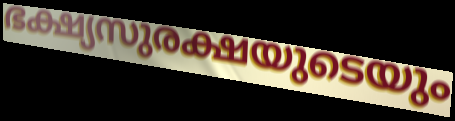
ഭക്ഷ്യസുരക്ഷയുടെയും